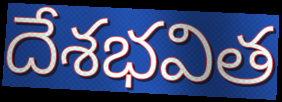
దేశభవిత